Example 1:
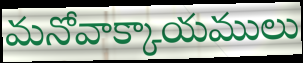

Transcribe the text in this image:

మనోవాక్కాయములు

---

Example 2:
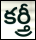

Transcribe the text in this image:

కర్త్రీ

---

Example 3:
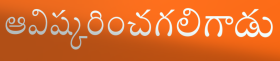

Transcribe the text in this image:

ఆవిష్కరించగలిగాడు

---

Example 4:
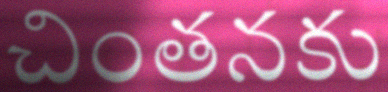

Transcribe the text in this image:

చింతనకు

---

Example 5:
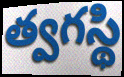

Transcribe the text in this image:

త్వగస్థి